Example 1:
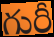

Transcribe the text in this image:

గురీ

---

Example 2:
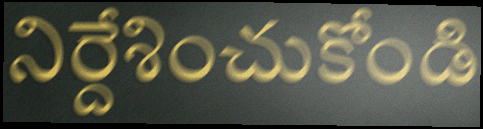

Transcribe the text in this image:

నిర్దేశించుకోండి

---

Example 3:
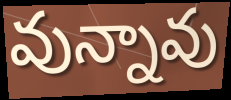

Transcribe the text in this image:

వున్నావు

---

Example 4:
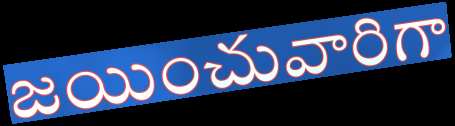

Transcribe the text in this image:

జయించువారిగా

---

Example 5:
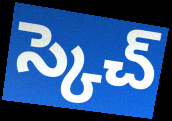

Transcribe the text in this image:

స్కెచ్